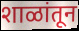
शाळांतून